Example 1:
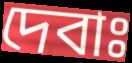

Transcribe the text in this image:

দেবাঃ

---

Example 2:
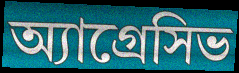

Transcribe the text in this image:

অ্যাগ্রেসিভ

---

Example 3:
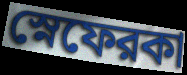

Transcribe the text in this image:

স্নেফেরকা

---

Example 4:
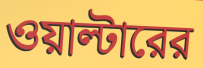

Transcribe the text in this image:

ওয়াল্টারের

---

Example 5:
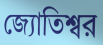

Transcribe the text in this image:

জ্যোতিশ্বর